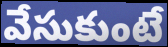
వేసుకుంటే